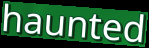
haunted